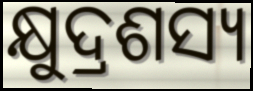
କ୍ଷୁଦ୍ରଶସ୍ୟ